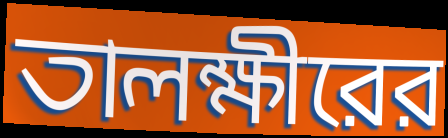
তালক্ষীরের